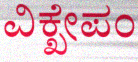
ವಿಕ್ಖೇಪಂ